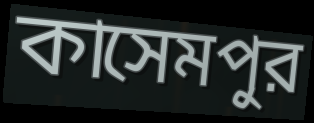
কাসেমপুর